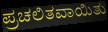
ಪ್ರಚಲಿತವಾಯಿತು